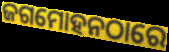
ଜଗମୋହନଠାରେ